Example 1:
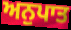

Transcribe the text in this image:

ਅਨੁਪਾਤ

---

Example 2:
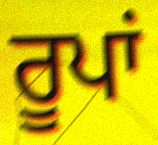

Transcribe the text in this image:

ਰੂਪਾਂ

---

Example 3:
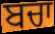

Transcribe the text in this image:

ਬਚਾ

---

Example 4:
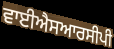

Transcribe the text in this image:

ਵਾਈਐਸਆਰਸੀਪੀ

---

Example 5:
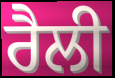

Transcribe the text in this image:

ਰੈਲੀ